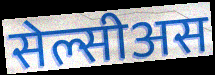
सेल्सीअस